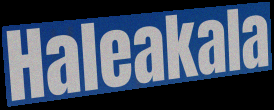
Haleakala